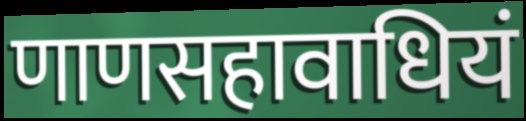
णाणसहावाधियं